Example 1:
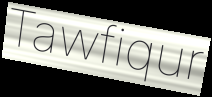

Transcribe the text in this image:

Tawfiqur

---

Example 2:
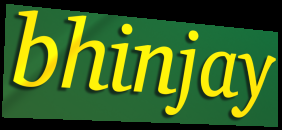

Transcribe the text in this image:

bhinjay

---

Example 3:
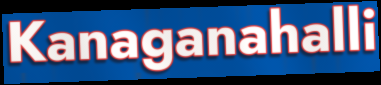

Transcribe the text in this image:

Kanaganahalli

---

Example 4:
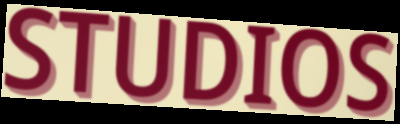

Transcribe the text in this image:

STUDIOS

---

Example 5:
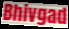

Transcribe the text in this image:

Bhivgad